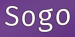
Sogo